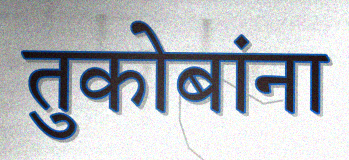
तुकोबांना